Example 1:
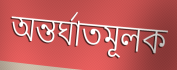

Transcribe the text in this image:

অন্তর্ঘাতমূলক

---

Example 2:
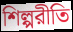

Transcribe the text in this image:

শিল্পরীতি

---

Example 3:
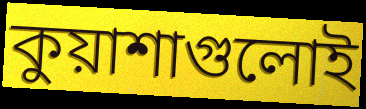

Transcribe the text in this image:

কুয়াশাগুলোই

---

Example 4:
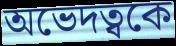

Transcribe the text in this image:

অভেদত্বকে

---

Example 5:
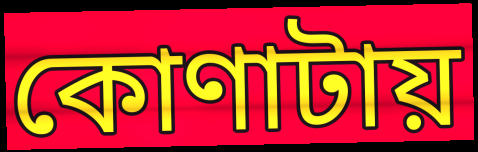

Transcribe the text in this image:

কোণাটায়